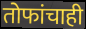
तोफांचाही